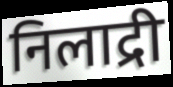
निलाद्री